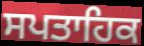
ਸਪਤਾਹਿਕ